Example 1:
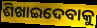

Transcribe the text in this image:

ଶିଖାଇଦେବାକୁ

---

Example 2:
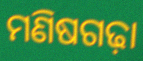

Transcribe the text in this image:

ମଣିଷଗଢ଼ା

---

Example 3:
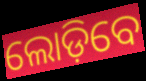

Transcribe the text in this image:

ଲୋଡ଼ିବେ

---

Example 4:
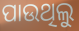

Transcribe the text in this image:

ପାଉଥିଲୁ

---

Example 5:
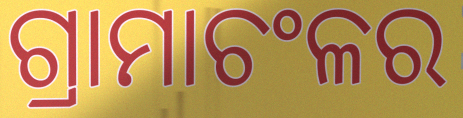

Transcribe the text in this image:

ଗ୍ରାମାଚଂଳର